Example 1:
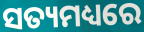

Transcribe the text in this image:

ସତ୍ୟମଧ୍ୟରେ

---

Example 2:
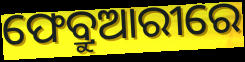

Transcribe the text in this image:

ଫେବ୍ରୁଆରୀରେ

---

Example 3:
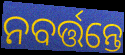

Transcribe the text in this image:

ନବର୍ତ୍ତନ୍ତେ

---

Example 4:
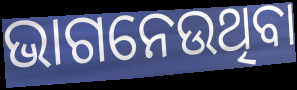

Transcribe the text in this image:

ଭାଗନେଉଥିବା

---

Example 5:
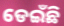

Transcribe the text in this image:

ଡେଇଁଛି